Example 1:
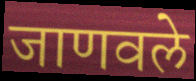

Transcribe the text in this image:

जाणवले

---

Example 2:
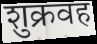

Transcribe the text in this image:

शुक्रवह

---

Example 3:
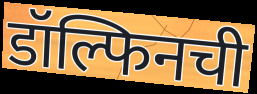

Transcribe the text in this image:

डॉल्फिनची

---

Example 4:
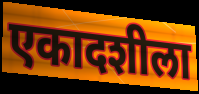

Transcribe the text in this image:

एकादशीला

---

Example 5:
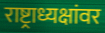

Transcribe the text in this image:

राष्ट्राध्यक्षांवर